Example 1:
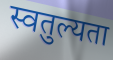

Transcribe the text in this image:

स्वतुल्यता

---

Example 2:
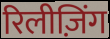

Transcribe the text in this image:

रिलीज़िंग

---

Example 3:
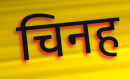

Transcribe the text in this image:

चिनह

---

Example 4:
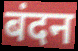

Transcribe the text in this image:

बंदन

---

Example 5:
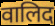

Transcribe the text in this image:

वालिद